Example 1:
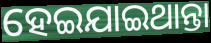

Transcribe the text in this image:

ହେଇଯାଇଥାନ୍ତା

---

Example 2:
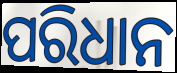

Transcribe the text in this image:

ପରିଧାନ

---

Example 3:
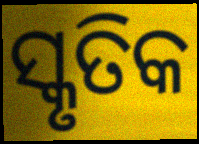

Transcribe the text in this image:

ସ୍କୃତିକ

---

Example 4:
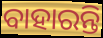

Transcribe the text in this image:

ବାହାରନ୍ତି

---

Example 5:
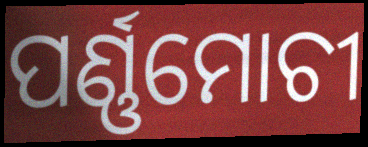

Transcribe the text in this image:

ପର୍ଣ୍ଣମୋଚୀ